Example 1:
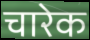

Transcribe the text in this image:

चारेक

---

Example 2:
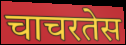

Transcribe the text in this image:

चाचरतेस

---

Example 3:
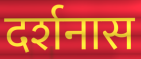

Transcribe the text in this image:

दर्शनास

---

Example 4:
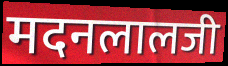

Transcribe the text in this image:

मदनलालजी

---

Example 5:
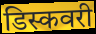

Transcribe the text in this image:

डिस्कवरी